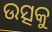
ଉତ୍ସକୁ